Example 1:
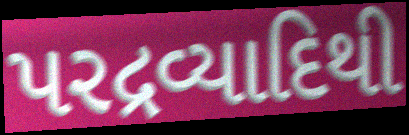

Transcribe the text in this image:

પરદ્રવ્યાદિથી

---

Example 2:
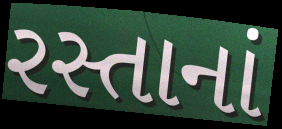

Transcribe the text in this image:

રસ્તાનાં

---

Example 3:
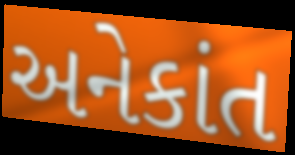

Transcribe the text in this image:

અનેકાંત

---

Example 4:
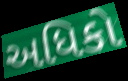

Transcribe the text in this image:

અધિકો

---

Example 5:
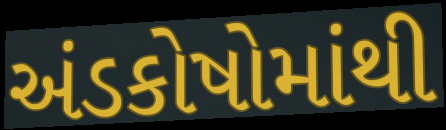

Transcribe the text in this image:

અંડકોષોમાંથી